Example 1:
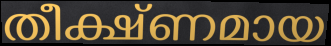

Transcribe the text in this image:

തീക്ഷ്‌ണമായ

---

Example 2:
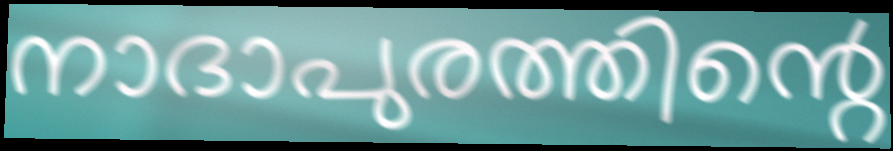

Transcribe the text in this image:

നാദാപുരത്തിന്റെ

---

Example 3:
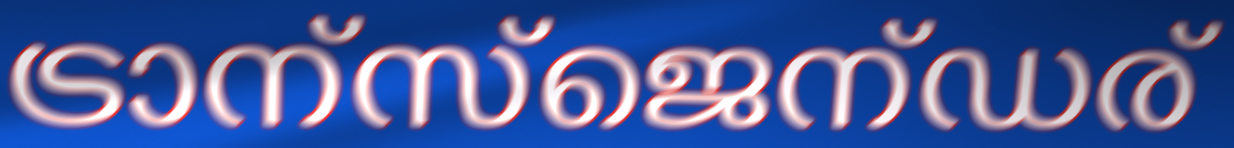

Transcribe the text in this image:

ട്രാന്സ്ജെന്ഡര്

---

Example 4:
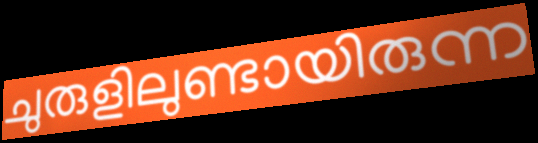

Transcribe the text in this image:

ചുരുളിലുണ്ടായിരുന്ന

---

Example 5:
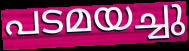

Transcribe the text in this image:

പടമയച്ചു